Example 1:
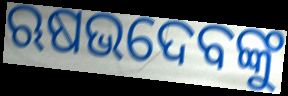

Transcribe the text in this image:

ଋଷଭଦେବଙ୍କୁ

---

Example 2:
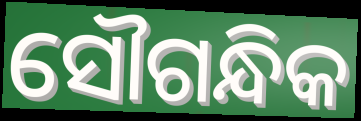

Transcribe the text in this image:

ସୌଗନ୍ଧିକ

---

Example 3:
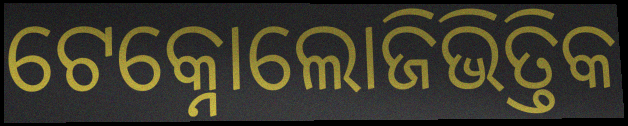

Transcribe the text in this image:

ଟେକ୍ନୋଲୋଜିଭିତ୍ତିକ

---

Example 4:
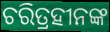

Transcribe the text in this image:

ଚରିତ୍ରହୀନଙ୍କ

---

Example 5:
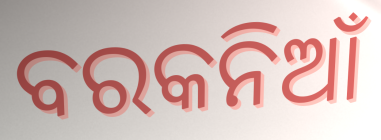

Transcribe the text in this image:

ବରକନିଆଁ